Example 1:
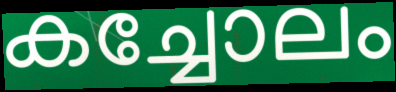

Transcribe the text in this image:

കച്ചോലം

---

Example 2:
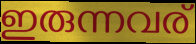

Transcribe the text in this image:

ഇരുന്നവര്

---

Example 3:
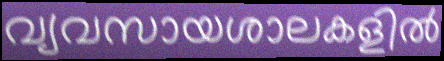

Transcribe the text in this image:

വ്യവസായശാലകളിൽ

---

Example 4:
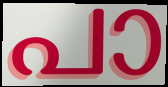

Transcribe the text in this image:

പാ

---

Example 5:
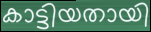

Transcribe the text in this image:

കാട്ടിയതായി